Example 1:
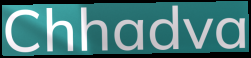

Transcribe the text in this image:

Chhadva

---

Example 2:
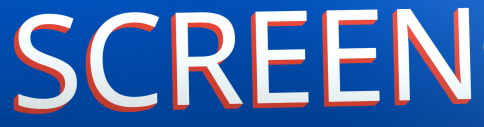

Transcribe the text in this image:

SCREEN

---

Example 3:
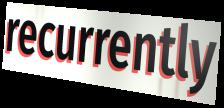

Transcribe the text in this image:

recurrently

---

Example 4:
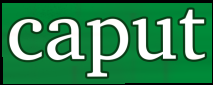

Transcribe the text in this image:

caput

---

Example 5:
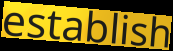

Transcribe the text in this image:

establish